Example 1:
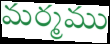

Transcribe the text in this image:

మర్మము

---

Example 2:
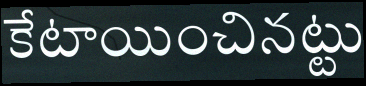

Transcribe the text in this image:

కేటాయించినట్టు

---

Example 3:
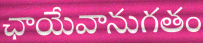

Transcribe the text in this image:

ఛాయేవానుగతం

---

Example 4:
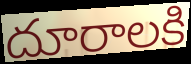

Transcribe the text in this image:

దూరాలకి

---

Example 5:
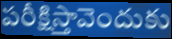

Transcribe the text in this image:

పరీక్షిస్తావెందుకు